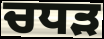
ਚਧੜ